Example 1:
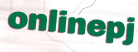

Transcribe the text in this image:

onlinepj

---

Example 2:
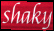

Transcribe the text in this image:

shaky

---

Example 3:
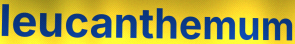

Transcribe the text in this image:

leucanthemum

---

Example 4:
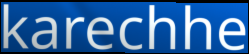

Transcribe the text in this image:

karechhe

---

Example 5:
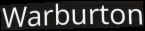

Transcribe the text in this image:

Warburton